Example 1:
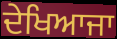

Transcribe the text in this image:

ਦੇਖਿਆਜਾ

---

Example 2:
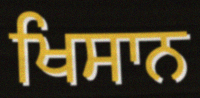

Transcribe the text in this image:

ਖਿਸਾਨ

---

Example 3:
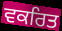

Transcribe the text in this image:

ਵਕਰਿਤ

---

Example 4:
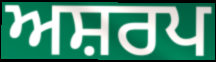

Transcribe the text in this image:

ਅਸ਼ਰਪ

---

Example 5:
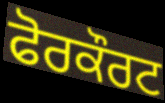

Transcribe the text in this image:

ਫੋਰਕੌਰਟ